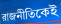
রাজনীতিকেই